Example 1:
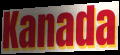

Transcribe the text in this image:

Kanada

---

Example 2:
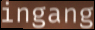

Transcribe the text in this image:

ingang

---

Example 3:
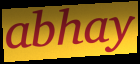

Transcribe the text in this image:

abhay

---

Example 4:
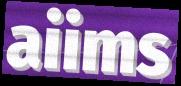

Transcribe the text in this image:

aiims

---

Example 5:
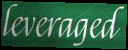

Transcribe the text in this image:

leveraged